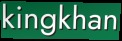
kingkhan